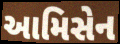
આમિસેન